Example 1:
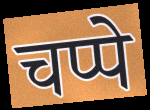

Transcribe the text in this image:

चप्पे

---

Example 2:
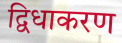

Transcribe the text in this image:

द्विधाकरण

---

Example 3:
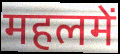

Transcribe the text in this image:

महलमें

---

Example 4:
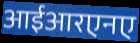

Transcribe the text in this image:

आईआरएनए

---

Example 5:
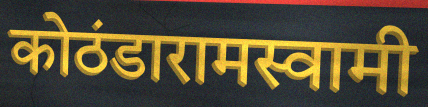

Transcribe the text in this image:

कोठंडारामस्वामी